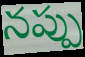
నప్పు